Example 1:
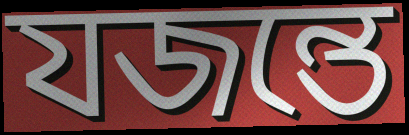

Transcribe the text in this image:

যজন্তে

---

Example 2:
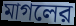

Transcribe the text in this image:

মাগলের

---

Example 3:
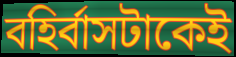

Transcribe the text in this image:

বহির্বাসটাকেই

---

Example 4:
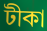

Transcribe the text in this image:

টীকা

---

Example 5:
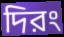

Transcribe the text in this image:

দিরং